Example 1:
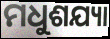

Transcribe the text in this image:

ମଧୁଶଯ୍ୟା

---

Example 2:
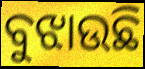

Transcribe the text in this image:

ବୁଝାଉଛି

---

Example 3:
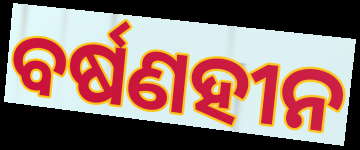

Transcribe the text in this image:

ବର୍ଷଣହୀନ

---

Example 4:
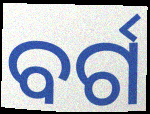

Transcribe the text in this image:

ବର୍ଗ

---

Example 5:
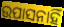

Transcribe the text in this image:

ଉପାସନାହିଁ